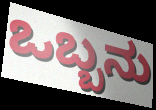
ಒಬ್ಬನು